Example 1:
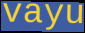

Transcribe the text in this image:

vayu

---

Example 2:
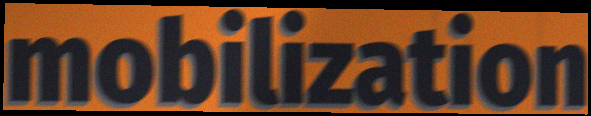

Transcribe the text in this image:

mobilization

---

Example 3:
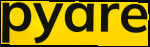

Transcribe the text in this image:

pyare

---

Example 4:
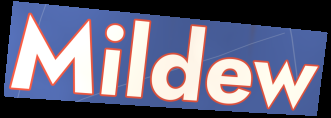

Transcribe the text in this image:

Mildew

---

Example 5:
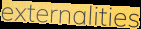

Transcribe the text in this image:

externalities